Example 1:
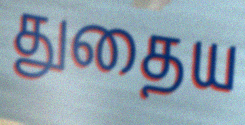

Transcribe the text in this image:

துதைய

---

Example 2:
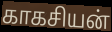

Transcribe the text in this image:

காகசியன்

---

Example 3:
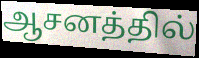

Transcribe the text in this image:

ஆசனத்தில்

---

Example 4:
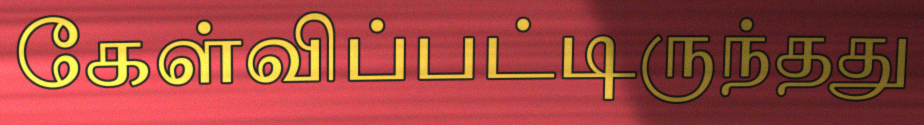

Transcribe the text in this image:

கேள்விப்பட்டிருந்தது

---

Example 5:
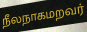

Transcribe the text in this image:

நீலநாகமறவர்